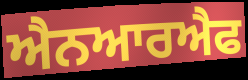
ਐਨਆਰਐਫ